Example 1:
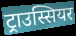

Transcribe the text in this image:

ट्राउस्सियर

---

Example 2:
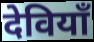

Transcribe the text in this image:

देवियाँ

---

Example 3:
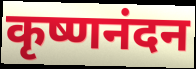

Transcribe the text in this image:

कृष्णनंदन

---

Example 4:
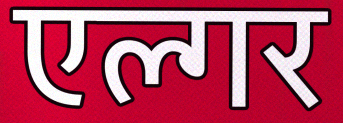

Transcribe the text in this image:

एल्गर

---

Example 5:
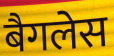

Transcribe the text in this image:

बैगलेस